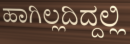
ಹಾಗಿಲ್ಲದಿದ್ದಲ್ಲಿ